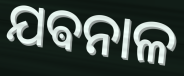
ଯଵନାଳ